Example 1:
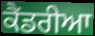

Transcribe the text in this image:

ਕੈਂਡਰੀਆ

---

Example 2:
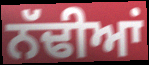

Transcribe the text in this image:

ਨੱਢੀਆਂ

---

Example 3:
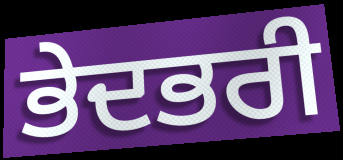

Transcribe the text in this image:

ਭੇਦਭਰੀ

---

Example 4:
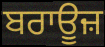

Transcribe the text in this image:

ਬਰਾਊਜ਼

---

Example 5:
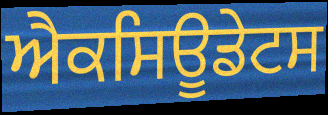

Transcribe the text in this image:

ਐਕਸਿਊਡੇਟਸ